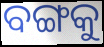
ବଙ୍ଗକୁ